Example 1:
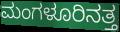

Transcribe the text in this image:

ಮಂಗಳೂರಿನತ್ತ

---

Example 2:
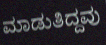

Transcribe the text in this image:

ಮಾಡುತಿದ್ದವು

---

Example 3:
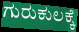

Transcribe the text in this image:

ಗುರುಕುಲಕ್ಕೆ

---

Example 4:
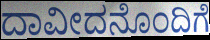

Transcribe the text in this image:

ದಾವೀದನೊಂದಿಗೆ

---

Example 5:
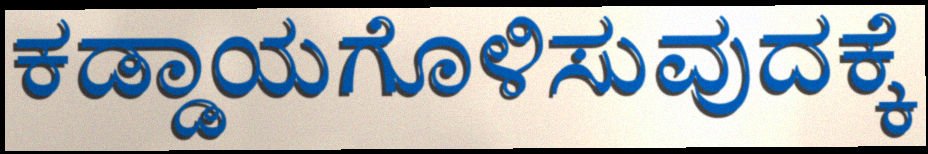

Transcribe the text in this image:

ಕಡ್ಡಾಯಗೊಳಿಸುವುದಕ್ಕೆ